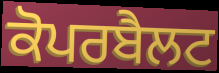
ਕੋਪਰਬੈਲਟ